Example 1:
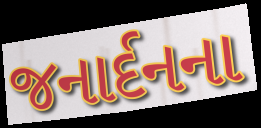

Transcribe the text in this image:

જનાર્દનના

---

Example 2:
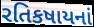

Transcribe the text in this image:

રતિકષાયનાં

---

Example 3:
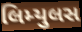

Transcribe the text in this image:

લિમ્યુલસ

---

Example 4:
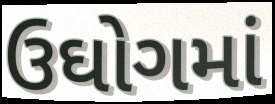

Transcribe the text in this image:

ઉઘોગમાં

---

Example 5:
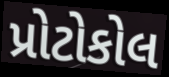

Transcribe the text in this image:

પ્રોટોકોલ